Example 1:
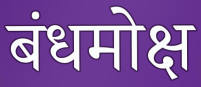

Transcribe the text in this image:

बंधमोक्ष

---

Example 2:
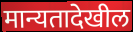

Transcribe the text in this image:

मान्यतादेखील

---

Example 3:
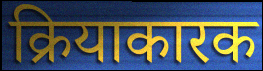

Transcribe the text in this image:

क्रियाकारक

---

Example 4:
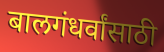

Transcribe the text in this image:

बालगंधर्वांसाठी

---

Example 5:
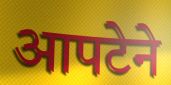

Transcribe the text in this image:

आपटेने